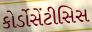
કોર્ડોસેંટીસિસ